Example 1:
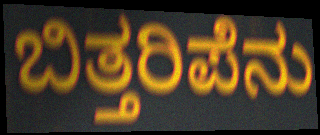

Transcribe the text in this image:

ಬಿತ್ತರಿಪೆನು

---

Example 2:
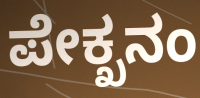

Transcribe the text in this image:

ಪೇಕ್ಖನಂ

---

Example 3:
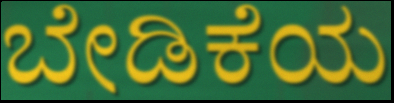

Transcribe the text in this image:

ಬೇಡಿಕೆಯ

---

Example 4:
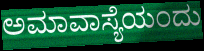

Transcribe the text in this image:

ಅಮಾವಾಸ್ಯೆಯಂದು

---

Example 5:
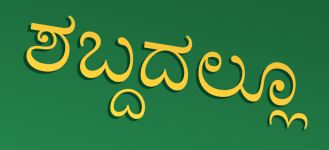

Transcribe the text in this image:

ಶಬ್ದದಲ್ಲೂ